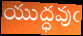
యుద్ధవుఁ